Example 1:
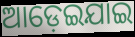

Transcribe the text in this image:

ଆଡ଼େଇଯାଇ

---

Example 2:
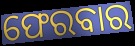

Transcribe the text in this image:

ଫେରବାର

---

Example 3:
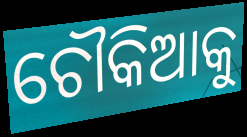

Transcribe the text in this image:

ଚୌକିଆକୁ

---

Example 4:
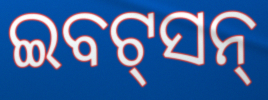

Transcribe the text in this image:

ଇବଟ୍‌ସନ୍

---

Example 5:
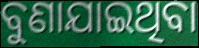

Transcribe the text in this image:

ବୁଣାଯାଇଥିବା